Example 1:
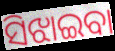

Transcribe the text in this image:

ସିଝାଇବା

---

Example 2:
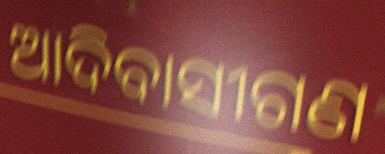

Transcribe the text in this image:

ଆଦିବାସୀଗଣ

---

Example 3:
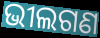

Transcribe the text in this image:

ଭୀଲଗଣ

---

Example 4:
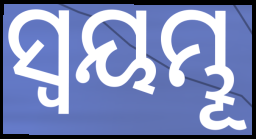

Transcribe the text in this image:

ସ୍ଵୟମ୍ଭୂ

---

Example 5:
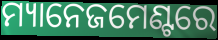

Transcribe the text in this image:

ମ୍ୟାନେଜମେଣ୍ଟରେ